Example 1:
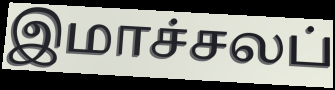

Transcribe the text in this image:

இமாச்சலப்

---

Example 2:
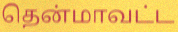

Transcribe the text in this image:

தென்மாவட்ட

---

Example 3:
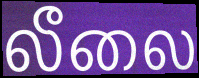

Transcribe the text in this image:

லீலை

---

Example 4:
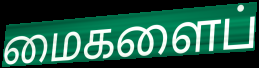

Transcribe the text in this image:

மைகளைப்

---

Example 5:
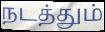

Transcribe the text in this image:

நடத்தும்